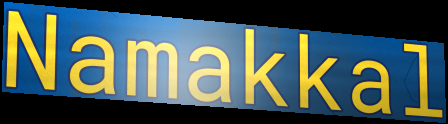
Namakkal